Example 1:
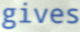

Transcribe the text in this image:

gives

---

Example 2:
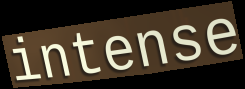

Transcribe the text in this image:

intense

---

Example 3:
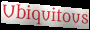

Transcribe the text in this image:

Ubiquitous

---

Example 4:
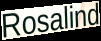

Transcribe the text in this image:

Rosalind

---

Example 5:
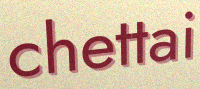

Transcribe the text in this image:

chettai